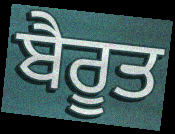
ਬੈਰੂਤ